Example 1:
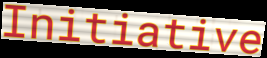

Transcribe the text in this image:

Initiative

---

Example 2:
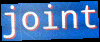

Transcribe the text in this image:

joint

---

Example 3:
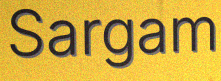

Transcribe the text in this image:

Sargam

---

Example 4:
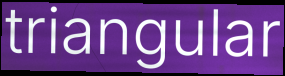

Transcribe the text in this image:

triangular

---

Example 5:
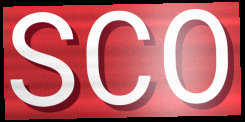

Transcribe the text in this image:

SCO